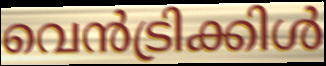
വെൻട്രിക്കിൾ